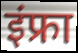
इंफ्रा